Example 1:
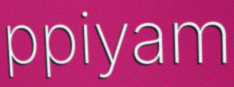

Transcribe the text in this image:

ppiyam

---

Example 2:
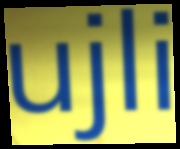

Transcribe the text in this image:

ujli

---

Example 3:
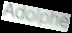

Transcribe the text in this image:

Adolphe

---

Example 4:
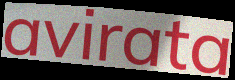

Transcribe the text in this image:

avirata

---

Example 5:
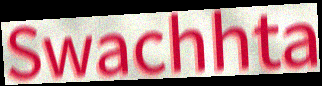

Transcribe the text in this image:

Swachhta